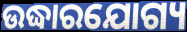
ଉଦ୍ଧାରଯୋଗ୍ୟ